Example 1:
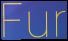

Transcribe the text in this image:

Fur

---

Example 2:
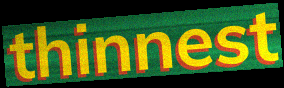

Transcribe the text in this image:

thinnest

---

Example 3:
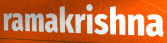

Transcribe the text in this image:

ramakrishna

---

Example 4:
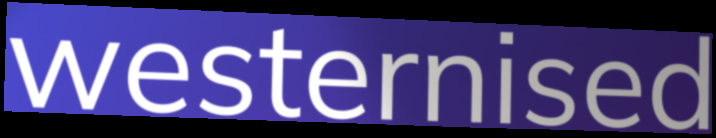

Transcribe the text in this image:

westernised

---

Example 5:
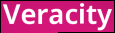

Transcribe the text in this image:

Veracity